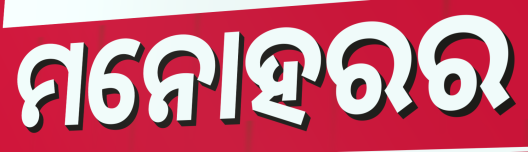
ମନୋହରର